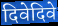
दिवेदिवे